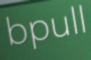
bpull